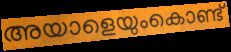
അയാളെയുംകൊണ്ട്